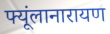
फ्यूंलानारायण